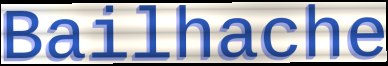
Bailhache